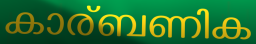
കാര്ബണിക